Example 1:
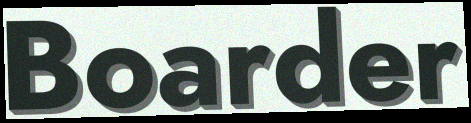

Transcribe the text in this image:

Boarder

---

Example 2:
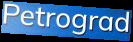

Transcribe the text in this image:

Petrograd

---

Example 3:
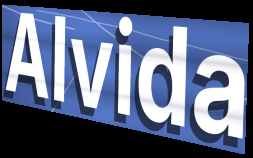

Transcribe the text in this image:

Alvida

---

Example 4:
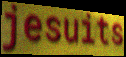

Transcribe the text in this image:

jesuits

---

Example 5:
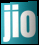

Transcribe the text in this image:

jio